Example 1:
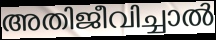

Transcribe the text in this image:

അതിജീവിച്ചാൽ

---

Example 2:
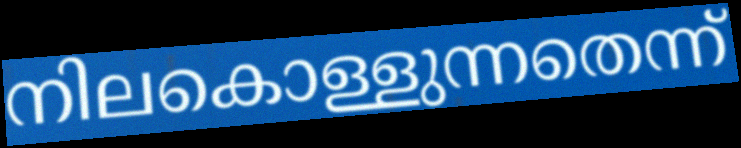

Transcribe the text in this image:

നിലകൊള്ളുന്നതെന്ന്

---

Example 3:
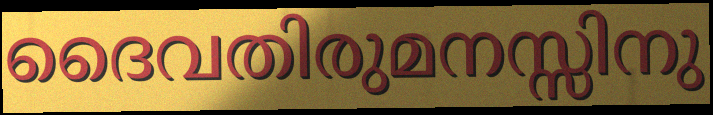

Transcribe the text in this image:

ദൈവതിരുമനസ്സിനു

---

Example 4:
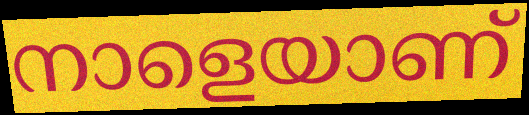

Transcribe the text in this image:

നാളെയാണ്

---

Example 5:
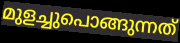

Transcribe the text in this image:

മുളച്ചുപൊങ്ങുന്നത്